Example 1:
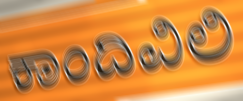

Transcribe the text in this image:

ಕಾಂದಿವಿಲಿ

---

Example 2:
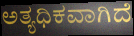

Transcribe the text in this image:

ಅತ್ಯಧಿಕವಾಗಿದೆ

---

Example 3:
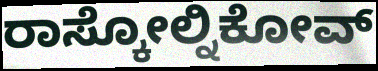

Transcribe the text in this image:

ರಾಸ್ಕೋಲ್ನಿಕೋವ್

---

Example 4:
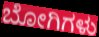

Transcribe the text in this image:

ಬೋಗಿಗಳು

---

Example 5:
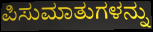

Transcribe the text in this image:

ಪಿಸುಮಾತುಗಳನ್ನು